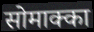
सोमाक्का